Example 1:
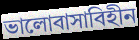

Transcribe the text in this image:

ভালোবাসাবিহীন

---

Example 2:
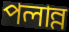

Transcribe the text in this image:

পলান্ন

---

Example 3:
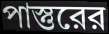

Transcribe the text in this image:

পাস্তুরের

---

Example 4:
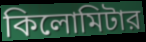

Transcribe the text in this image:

কিলোমিটার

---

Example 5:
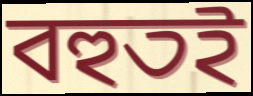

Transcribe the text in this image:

বহুতই